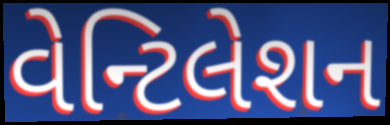
વેન્ટિલેશન